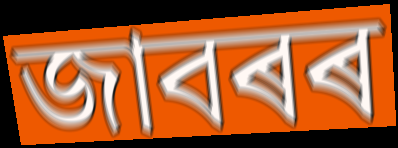
জাবৰৰ